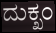
ದುಕ್ಖಂ